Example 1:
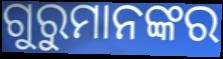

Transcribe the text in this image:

ଗୁରୁମାନଙ୍କର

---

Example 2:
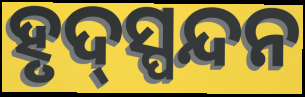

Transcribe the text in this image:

ହୃଦ୍‍ସ୍ପନ୍ଦନ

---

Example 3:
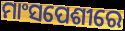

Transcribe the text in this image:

ମାଂସପେଶୀରେ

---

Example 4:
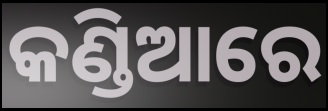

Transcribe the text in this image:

କଣ୍ଡିଆରେ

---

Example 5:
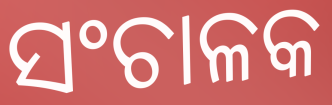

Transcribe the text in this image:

ସଂଚାଳକ